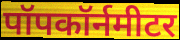
पॉपकॉर्नमीटर